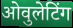
ओवुलेटिंग